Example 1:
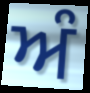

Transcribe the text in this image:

ਅੰ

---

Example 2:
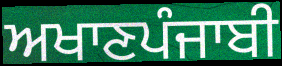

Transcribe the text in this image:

ਅਖਾਣਪੰਜਾਬੀ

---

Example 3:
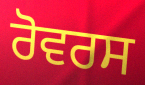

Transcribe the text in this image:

ਰੋਵਰਸ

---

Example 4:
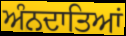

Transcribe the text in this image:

ਅੰਨਦਾਤਿਆਂ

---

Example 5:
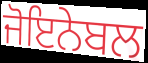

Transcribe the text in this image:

ਜੋਇਨੇਬਲ